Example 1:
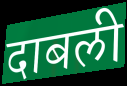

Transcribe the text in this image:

दाबली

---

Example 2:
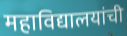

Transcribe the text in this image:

महाविद्यालयांची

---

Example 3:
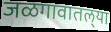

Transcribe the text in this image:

जळगावातल्या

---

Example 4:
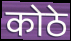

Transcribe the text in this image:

कोठे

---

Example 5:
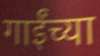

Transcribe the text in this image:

गाईंच्या